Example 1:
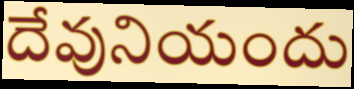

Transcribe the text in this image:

దేవునియందు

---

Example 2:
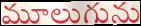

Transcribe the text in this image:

మూలుగును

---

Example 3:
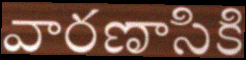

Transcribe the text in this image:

వారణాసికి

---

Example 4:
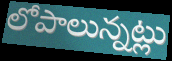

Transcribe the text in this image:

లోపాలున్నట్లు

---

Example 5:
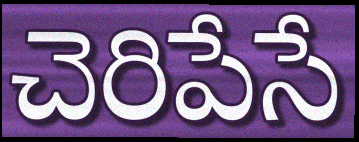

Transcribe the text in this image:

చెరిపేసే